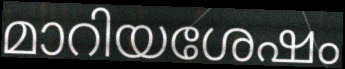
മാറിയശേഷം